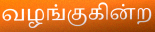
வழங்குகின்ற